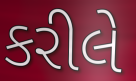
કરીલે